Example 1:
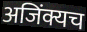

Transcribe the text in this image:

अजिंक्यच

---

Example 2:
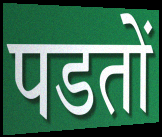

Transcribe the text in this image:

पडतों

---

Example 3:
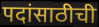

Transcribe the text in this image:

पदांसाठीची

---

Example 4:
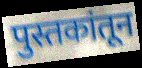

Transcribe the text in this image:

पुस्तकांतून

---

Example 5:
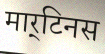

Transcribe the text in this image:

मार्टिनस